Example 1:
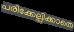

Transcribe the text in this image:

പരിക്കേല്പിക്കാതെ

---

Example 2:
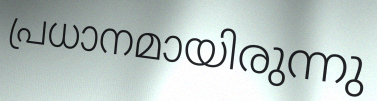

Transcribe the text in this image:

പ്രധാനമായിരുന്നു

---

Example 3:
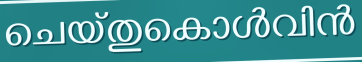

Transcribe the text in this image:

ചെയ്തുകൊൾവിൻ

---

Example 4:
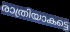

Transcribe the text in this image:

രാത്രിയാകട്ടെ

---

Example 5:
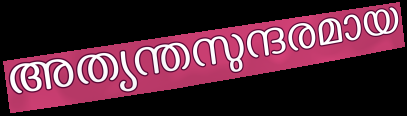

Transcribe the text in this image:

അത്യന്തസുന്ദരമായ